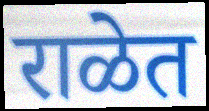
राळेत